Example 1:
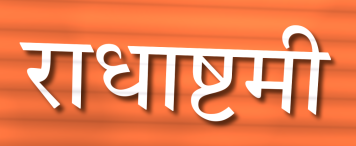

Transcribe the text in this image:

राधाष्टमी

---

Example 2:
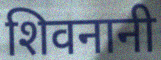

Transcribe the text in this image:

शिवनानी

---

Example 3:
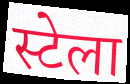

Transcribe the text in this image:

स्टेला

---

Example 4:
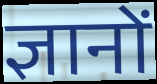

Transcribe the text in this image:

ज्ञानों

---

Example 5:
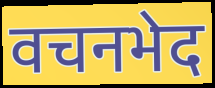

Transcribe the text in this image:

वचनभेद